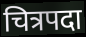
चित्रपदा